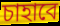
চাহাবে